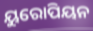
ୟୁରୋପିୟନ